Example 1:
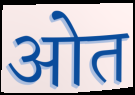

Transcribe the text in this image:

ओत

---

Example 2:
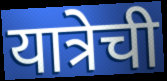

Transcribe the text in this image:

यात्रेची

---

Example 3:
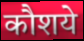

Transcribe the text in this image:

कौशये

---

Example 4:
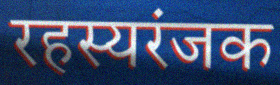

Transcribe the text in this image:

रहस्यरंजक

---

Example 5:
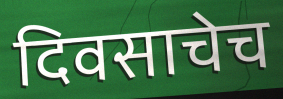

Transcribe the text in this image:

दिवसाचेच